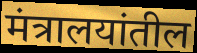
मंत्रालयांतील